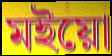
মইয়ো